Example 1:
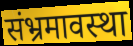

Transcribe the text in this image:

संभ्रमावस्था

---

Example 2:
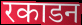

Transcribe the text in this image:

रकाडन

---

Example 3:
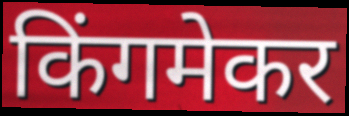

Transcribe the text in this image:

किंगमेकर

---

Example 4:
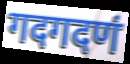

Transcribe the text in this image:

गदगदणं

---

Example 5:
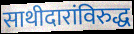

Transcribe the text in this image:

साथीदारांविरुद्ध